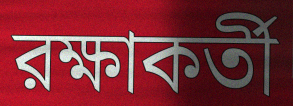
রক্ষাকর্তী